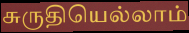
சுருதியெல்லாம்